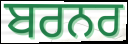
ਬਰਨਰ